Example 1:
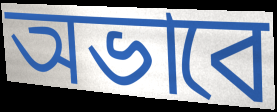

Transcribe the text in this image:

অভাবে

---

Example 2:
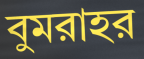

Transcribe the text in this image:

বুমরাহর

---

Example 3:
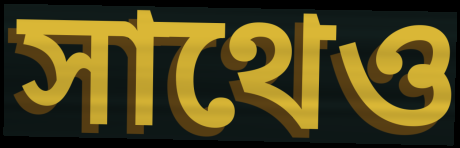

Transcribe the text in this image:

সাথেও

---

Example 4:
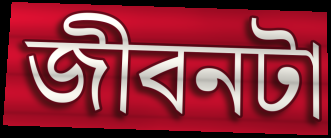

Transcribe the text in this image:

জীবনটা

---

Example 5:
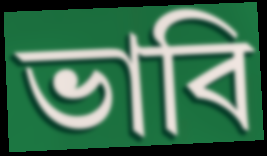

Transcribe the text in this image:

ভাবি